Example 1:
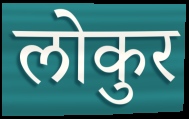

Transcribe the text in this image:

लोकुर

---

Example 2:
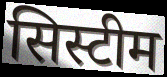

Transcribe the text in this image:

सिस्टीम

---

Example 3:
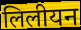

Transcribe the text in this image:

लिलीयन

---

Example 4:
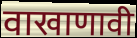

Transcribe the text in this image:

वाखाणावी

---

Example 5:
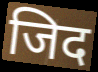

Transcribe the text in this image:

जिद